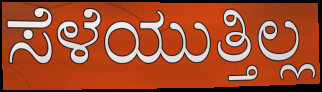
ಸೆಳೆಯುತ್ತಿಲ್ಲ